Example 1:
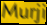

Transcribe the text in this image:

Murji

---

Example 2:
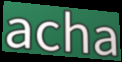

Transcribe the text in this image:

acha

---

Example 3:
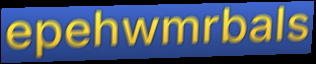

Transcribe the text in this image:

epehwmrbals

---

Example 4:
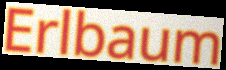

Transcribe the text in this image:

Erlbaum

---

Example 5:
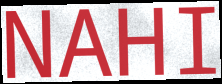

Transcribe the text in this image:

NAHI